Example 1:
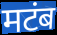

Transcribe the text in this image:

मटंब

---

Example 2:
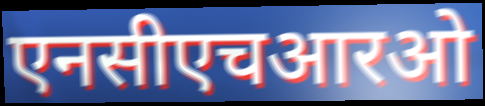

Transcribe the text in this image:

एनसीएचआरओ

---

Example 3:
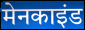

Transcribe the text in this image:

मेनकाइंड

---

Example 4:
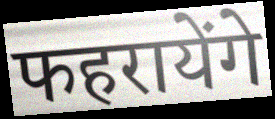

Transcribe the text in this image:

फहरायेंगे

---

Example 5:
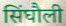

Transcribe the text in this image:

सिंघौली